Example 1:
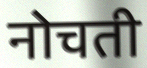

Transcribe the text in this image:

नोचती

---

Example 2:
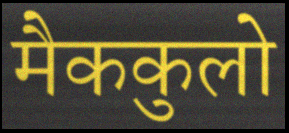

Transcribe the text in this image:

मैककुलो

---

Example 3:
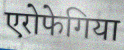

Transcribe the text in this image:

एरोफेगिया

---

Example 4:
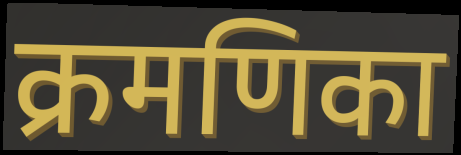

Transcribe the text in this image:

क्रमणिका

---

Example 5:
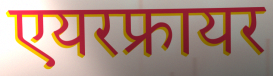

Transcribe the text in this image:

एयरफ्रायर